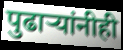
पुढाऱ्यांनीही